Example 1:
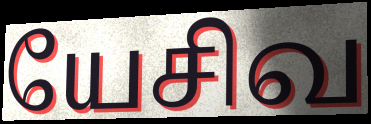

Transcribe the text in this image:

யேசிவ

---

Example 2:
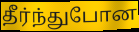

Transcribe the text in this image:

தீர்ந்துபோன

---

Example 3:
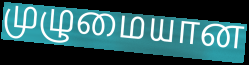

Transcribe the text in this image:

முழுமையான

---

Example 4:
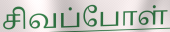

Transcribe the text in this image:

சிவப்போள்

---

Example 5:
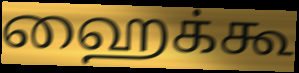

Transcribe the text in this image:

ஹைக்கூ